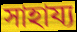
সাহায্য